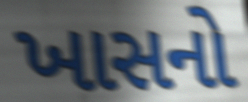
ખાસનો